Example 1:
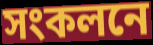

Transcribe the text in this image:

সংকলনে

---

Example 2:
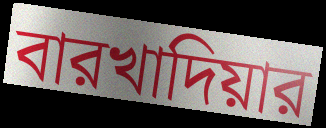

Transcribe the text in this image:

বারখাদিয়ার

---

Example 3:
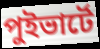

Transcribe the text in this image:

পুইভার্টে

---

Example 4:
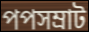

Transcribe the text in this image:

পপসম্রাট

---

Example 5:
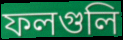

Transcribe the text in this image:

ফলগুলি